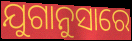
ଯୁଗାନୁସାରେ